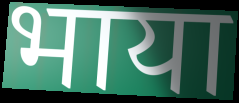
भाया